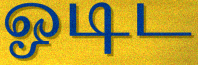
ஓடிட